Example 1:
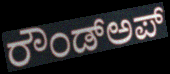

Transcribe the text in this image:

ರೌಂಡ್ಅಪ್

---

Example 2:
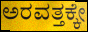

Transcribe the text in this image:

ಅರವತ್ತಕ್ಕೇ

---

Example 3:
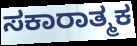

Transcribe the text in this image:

ಸಕಾರಾತ್ಮಕ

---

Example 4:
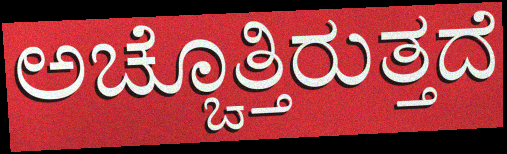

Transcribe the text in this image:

ಅಚ್ಚೊತ್ತಿರುತ್ತದೆ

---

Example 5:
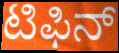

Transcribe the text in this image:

ಟಿಫಿನ್